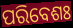
ପରିବେଶଃ